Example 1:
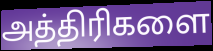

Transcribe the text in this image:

அத்திரிகளை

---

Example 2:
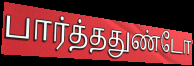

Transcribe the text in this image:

பார்த்ததுண்டோ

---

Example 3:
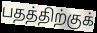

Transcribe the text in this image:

பதத்திற்குக்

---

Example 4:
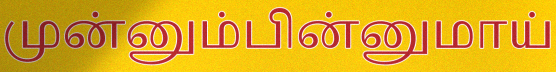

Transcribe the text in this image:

முன்னும்பின்னுமாய்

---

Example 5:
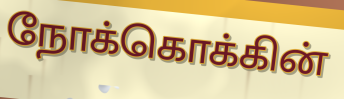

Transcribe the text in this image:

நோக்கொக்கின்